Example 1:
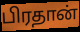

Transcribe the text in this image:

பிரதான்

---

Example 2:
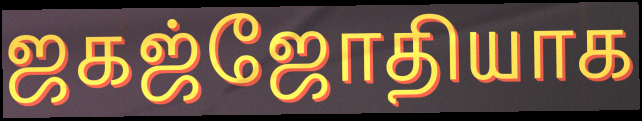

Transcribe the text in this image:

ஜகஜ்ஜோதியாக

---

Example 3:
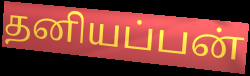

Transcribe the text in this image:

தனியப்பன்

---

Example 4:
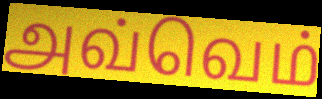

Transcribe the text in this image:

அவ்வெம்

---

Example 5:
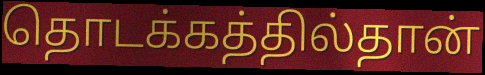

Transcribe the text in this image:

தொடக்கத்தில்தான்